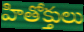
హితోక్తులు